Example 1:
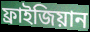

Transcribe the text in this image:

ফ্রাইজিয়ান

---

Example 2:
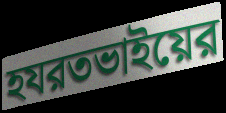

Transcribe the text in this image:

হযরতভাইয়ের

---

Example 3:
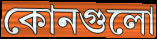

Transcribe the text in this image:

কোনগুলো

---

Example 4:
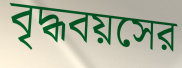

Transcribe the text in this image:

বৃদ্ধবয়সের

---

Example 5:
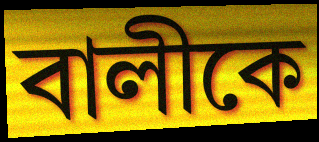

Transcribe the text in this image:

বালীকে